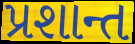
પ્રશાન્ત